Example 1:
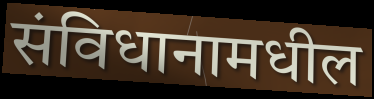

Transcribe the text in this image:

संविधानामधील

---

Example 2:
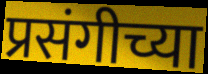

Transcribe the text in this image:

प्रसंगीच्या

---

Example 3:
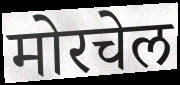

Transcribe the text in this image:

मोरचेल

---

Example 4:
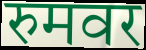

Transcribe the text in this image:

रुमवर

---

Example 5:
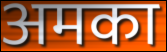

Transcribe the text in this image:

अमका